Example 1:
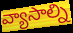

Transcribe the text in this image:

వ్యాసాల్ని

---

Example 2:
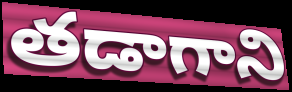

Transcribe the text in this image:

తడాగాని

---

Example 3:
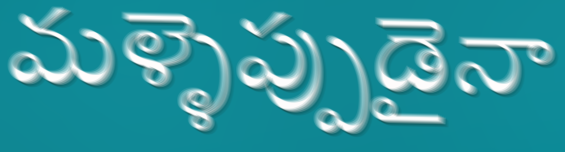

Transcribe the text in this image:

మళ్ళెప్పుడైనా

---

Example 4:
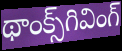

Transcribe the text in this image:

థాంక్స్‌గివింగ్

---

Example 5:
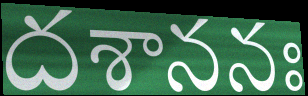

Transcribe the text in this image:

దశాననః